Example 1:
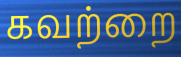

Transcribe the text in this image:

கவற்றை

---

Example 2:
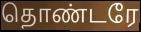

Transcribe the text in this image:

தொண்டரே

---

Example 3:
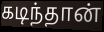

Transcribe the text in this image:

கடிந்தான்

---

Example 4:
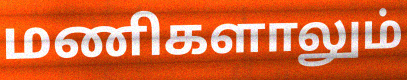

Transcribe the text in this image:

மணிகளாலும்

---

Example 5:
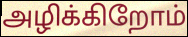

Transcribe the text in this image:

அழிக்கிறோம்